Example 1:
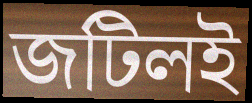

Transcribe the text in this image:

জটিলই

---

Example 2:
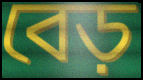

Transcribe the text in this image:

বেড়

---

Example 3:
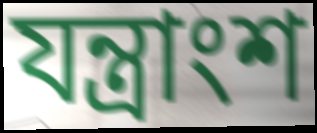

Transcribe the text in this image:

যন্ত্রাংশ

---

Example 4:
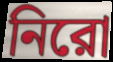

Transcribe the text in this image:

নিরো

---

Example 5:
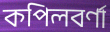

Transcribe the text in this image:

কপিলবর্ণা